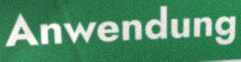
Anwendung